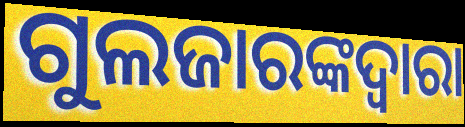
ଗୁଲଜାରଙ୍କଦ୍ୱାରା